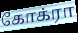
கோக்ரா